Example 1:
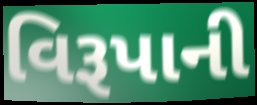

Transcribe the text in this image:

વિરૂપાની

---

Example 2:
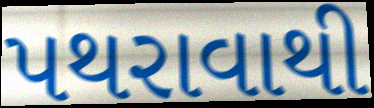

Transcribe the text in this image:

પથરાવાથી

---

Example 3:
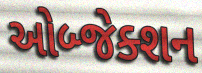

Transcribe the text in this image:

ઓબ્જેક્શન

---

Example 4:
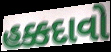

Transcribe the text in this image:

હક્કદાવો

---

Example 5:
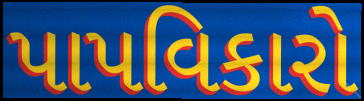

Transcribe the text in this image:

પાપવિકારો